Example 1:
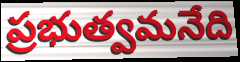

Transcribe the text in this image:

ప్రభుత్వమనేది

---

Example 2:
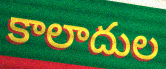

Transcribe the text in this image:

కాలాదుల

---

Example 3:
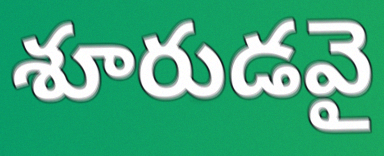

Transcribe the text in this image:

శూరుడవై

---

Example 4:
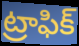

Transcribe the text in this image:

ట్రాఫిక్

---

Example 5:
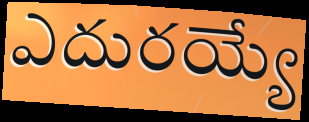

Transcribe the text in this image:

ఎదురయ్యే